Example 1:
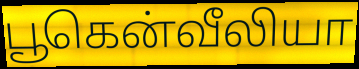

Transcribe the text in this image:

பூகென்வீலியா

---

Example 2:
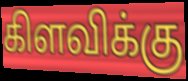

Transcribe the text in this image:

கிளவிக்கு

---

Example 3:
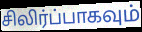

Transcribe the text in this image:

சிலிர்ப்பாகவும்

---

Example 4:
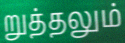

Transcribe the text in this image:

றுத்தலும்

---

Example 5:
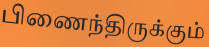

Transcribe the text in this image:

பிணைந்திருக்கும்